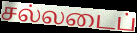
சல்லடைப்